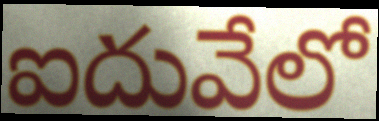
ఐదువేలో